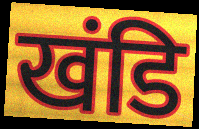
खंडि